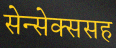
सेन्सेक्ससह